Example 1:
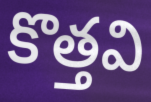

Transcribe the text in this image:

కొత్తవి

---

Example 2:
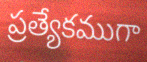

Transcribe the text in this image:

ప్రత్యేకముగా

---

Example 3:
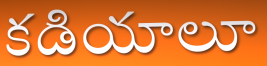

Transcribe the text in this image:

కడియాలూ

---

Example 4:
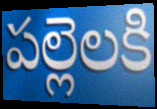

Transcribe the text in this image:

పల్లెలకి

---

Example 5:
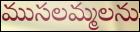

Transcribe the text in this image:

ముసలమ్మలను